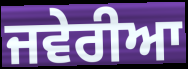
ਜਵੇਰੀਆ